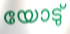
യോടു്